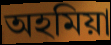
অহমিয়া